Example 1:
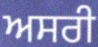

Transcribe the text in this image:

ਅਸਰੀ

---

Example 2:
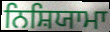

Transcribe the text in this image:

ਨਿਸ਼ਿਯਾਮਾ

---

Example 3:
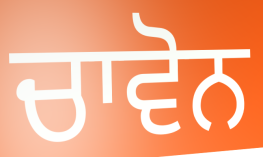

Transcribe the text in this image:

ਚਾਵੋਨ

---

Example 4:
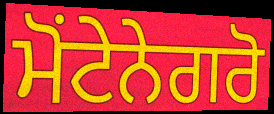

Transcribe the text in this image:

ਮੋਂਟੇਨੇਗਰੋ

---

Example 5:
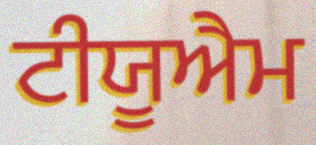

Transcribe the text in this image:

ਟੀਯੂਐਮ